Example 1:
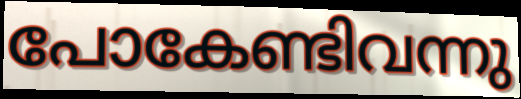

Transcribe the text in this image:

പോകേണ്ടിവന്നു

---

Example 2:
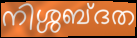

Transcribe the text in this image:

നിശ്ശബ്ദത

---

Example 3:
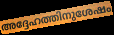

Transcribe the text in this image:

അദ്ദേഹത്തിനുശേഷം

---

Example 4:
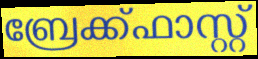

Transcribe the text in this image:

ബ്രേക്ക്ഫാസ്റ്റ്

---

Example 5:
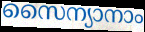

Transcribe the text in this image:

സൈന്യാനാം